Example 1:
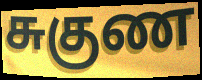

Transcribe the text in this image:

சுகுண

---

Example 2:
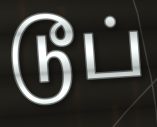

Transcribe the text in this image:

டூப்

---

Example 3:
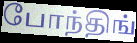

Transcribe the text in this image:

போந்திங்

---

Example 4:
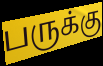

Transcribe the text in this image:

பருக்கு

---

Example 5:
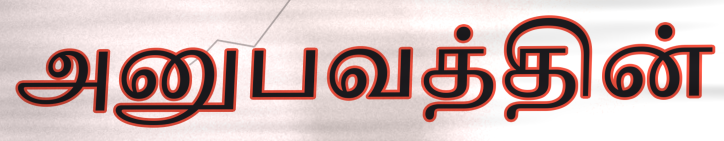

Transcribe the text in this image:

அனுபவத்தின்